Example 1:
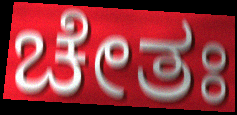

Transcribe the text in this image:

ಚೇತಃ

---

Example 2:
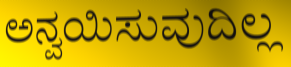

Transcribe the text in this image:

ಅನ್ವಯಿಸುವುದಿಲ್ಲ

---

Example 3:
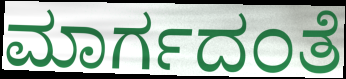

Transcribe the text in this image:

ಮಾರ್ಗದಂತೆ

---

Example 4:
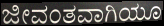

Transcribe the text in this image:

ಜೀವಂತವಾಗಿಯೂ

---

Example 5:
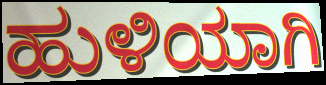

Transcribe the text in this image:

ಹುಳಿಯಾಗಿ